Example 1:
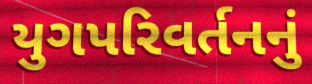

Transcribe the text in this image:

યુગપરિવર્તનનું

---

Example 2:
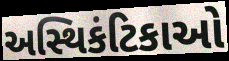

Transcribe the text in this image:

અસ્થિકંટિકાઓ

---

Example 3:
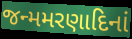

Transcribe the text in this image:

જન્મમરણાદિનાં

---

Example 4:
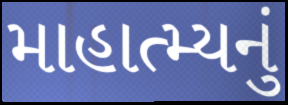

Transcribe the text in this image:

માહાત્મ્યનું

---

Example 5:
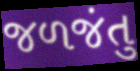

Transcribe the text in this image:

જળજંતુ